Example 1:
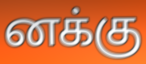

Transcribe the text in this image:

னக்கு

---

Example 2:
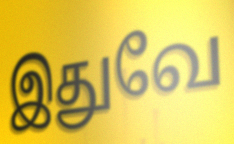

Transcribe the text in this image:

இதுவே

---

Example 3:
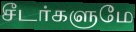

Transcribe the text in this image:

சீடர்களுமே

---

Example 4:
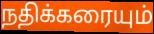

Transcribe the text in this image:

நதிக்கரையும்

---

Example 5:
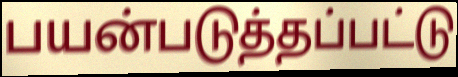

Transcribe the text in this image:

பயன்படுத்தப்பட்டு